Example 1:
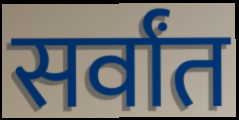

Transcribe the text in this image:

सर्वांत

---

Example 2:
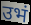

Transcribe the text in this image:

उभं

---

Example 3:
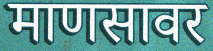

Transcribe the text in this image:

माणसावर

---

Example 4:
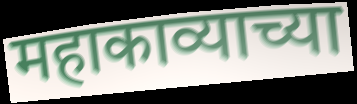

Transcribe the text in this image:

महाकाव्याच्या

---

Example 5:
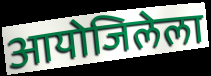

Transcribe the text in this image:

आयोजिलेला